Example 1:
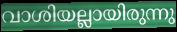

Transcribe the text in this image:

വാശിയല്ലായിരുന്നു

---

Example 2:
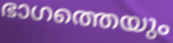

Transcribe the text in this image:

ഭാഗത്തെയും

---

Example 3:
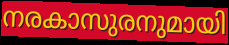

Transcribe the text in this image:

നരകാസുരനുമായി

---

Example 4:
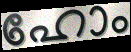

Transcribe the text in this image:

ഹോം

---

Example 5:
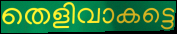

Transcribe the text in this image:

തെളിവാകട്ടെ